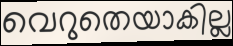
വെറുതെയാകില്ല